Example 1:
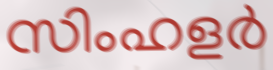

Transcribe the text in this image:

സിംഹളർ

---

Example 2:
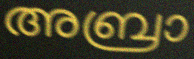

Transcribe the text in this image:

അബ്രാ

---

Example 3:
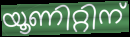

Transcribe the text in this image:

യൂണിറ്റിന്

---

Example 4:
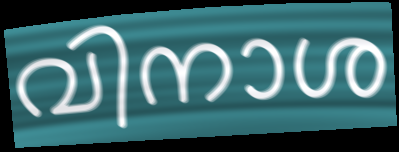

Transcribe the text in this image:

വിനാശ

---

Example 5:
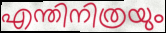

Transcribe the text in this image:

എന്തിനിത്രയും